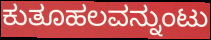
ಕುತೂಹಲವನ್ನುಂಟು